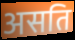
असति